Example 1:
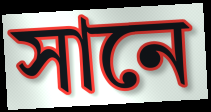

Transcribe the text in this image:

সানে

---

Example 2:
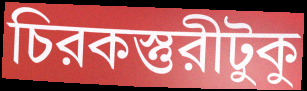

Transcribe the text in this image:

চিরকস্তুরীটুকু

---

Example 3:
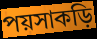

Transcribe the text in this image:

পয়সাকড়ি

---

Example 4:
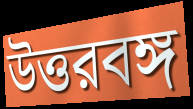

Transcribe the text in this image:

উত্তরবঙ্গ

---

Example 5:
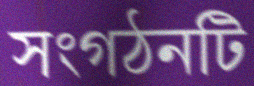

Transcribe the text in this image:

সংগঠনটি